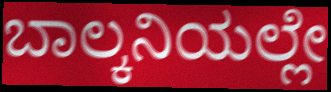
ಬಾಲ್ಕನಿಯಲ್ಲೇ